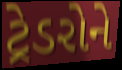
ટ્રેડરોને